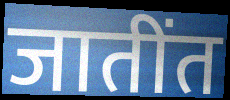
जातींत